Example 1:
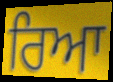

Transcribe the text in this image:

ਰਿਆ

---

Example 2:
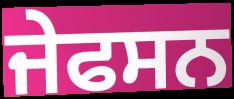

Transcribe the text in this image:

ਜੇਫਸਨ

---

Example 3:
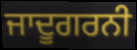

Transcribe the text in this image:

ਜਾਦੂਗਰਨੀ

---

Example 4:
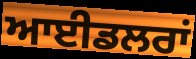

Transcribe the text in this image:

ਆਈਡਲਰਾਂ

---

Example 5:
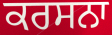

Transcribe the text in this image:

ਕਰਸਨਾ